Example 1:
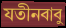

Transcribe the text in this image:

যতীনবাবু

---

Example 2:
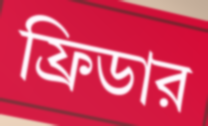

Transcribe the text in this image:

ফ্রিডার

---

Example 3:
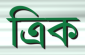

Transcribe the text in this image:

ত্রিক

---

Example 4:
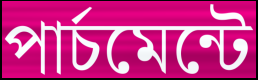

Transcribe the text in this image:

পার্চমেন্টে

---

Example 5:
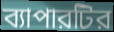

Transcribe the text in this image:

ব্যাপারটির